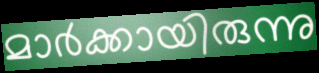
മാർക്കായിരുന്നു